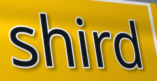
shird